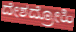
ದೇಶದ್ರೋಹಿ